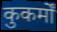
कुकर्मों